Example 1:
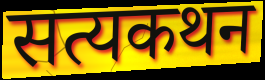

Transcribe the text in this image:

सत्यकथन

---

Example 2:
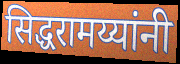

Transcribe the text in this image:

सिद्धरामय्यांनी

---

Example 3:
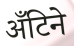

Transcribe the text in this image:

अँटिने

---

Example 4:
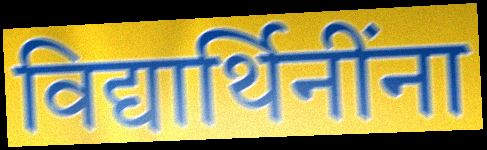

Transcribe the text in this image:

विद्यार्थिनींना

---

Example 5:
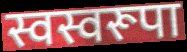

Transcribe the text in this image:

स्वस्वरूपा